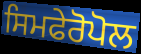
ਸਿਮਫੇਰੋਪੋਲ